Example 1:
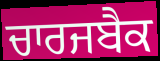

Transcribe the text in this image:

ਚਾਰਜਬੈਕ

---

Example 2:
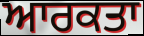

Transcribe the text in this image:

ਆਰਕਤਾ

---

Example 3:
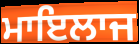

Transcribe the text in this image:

ਮਾਇਲਾਜ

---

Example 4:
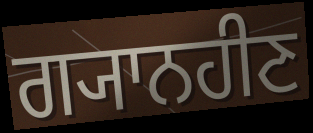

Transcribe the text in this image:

ਗ੍ਯਾਨਹੀਣ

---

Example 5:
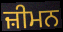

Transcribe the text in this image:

ਜ਼ੀਮਨ